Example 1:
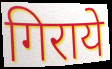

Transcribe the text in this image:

गिराये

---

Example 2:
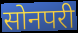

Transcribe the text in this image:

सोनपरी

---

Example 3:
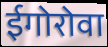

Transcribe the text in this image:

ईगोरोवा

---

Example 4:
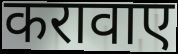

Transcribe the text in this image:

करावाए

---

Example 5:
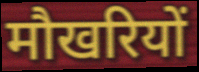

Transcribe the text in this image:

मौखरियों